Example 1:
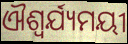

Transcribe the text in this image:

ଐଶ୍ୱର୍ଯ୍ୟମୟୀ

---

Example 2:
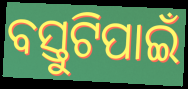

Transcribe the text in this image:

ବସ୍ତୁଟିପାଇଁ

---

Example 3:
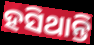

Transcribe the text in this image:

ହସିଥାନ୍ତି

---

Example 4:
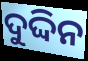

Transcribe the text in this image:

ଦୁଦ୍ଦିନ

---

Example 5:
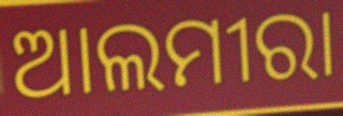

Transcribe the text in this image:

ଆଲମୀରା